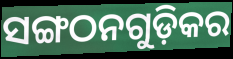
ସଙ୍ଗଠନଗୁଡ଼ିକର